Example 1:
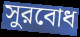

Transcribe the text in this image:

সুরবোধ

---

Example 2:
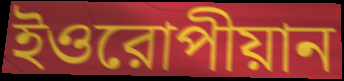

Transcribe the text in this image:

ইওরোপীয়ান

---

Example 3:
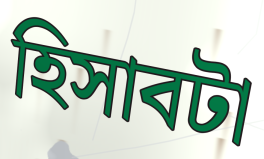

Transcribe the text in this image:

হিসাবটা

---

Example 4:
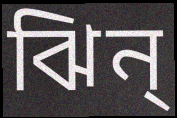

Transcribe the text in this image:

ঝিন্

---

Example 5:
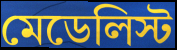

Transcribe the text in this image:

মেডেলিস্ট